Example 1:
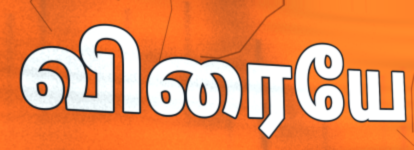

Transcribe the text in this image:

விரையே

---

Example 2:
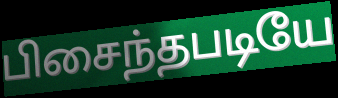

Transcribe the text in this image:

பிசைந்தபடியே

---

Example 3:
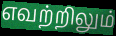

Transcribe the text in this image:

எவற்றிலும்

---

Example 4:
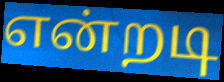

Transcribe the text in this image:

என்றடி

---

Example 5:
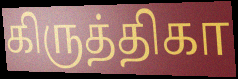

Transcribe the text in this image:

கிருத்திகா